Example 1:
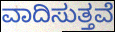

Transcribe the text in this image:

ವಾದಿಸುತ್ತವೆ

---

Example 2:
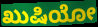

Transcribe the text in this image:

ಖುಷಿಯೋ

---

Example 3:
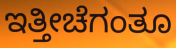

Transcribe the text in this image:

ಇತ್ತೀಚೆಗಂತೂ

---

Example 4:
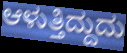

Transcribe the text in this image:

ಆಳುತ್ತಿದ್ದುದು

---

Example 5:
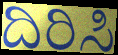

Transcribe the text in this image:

ದಿರಿಸಿ